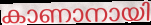
കാണാനായി